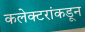
कलेक्टरांकडून